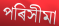
পৰিসীমা